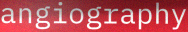
angiography